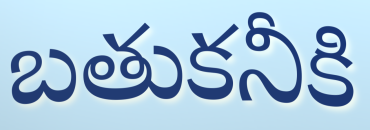
బతుకనీకి